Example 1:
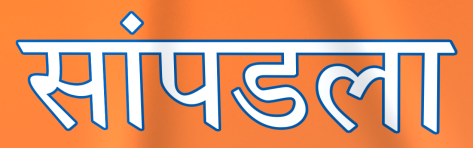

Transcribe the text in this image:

सांपडला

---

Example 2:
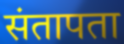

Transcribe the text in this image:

संतापता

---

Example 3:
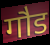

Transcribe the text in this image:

गौड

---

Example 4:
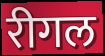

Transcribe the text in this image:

रीगल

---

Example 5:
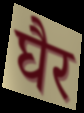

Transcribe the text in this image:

घैर